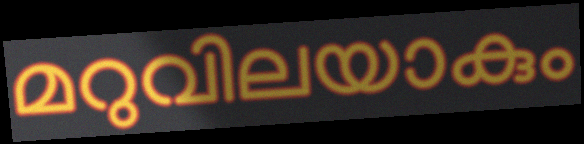
മറുവിലയാകും